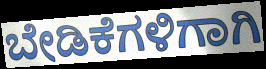
ಬೇಡಿಕೆಗಳಿಗಾಗಿ